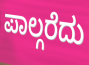
ಪಾಲ್ಗರೆದು